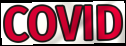
COVID